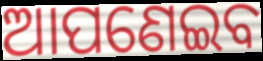
ଆପଣେଇବ